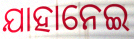
ଯାହାନେଇ